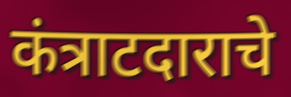
कंत्राटदाराचे